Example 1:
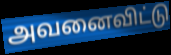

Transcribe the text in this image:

அவனைவிட்டு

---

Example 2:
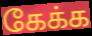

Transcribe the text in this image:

கேக்க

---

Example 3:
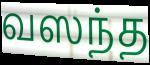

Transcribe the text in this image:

வஸந்த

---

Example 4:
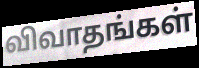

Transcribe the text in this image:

விவாதங்கள்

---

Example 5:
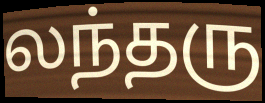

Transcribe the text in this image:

லந்தரு